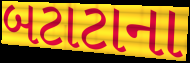
બટાટાના